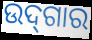
ଉଦ୍‌ଗାର